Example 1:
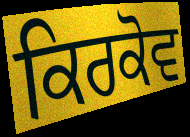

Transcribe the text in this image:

ਕਿਰਕੋਵ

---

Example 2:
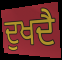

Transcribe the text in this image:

ਦੁਖਦੈ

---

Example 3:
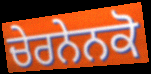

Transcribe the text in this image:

ਚੇਰਨੇਨਕੋ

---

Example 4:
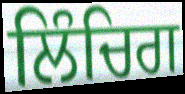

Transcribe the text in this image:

ਲਿੰਚਿਗ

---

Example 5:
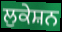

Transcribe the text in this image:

ਲੁਕੇਸ਼ਨ